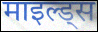
माइल्ड्स